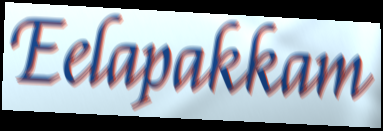
Eelapakkam